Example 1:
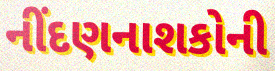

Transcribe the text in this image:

નીંદણનાશકોની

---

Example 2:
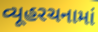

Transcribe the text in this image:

વ્યૂહરચનામાં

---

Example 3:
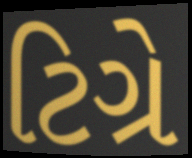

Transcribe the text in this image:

ટિગ્રે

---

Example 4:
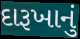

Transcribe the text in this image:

દારૂખાનું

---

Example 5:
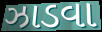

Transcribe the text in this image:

ઝાડવા